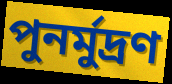
পুনর্মুদ্রণ